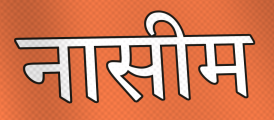
नासीम